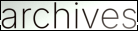
archives